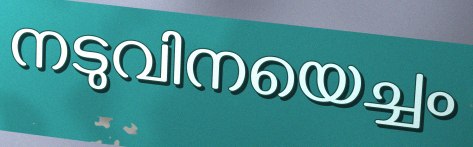
നടുവിനയെച്ചം